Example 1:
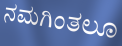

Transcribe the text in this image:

ನಮಗಿಂತಲೂ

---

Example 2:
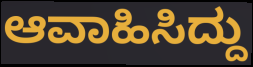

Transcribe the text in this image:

ಆವಾಹಿಸಿದ್ದು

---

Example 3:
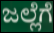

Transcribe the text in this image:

ಜಲ್ಲೆಗೆ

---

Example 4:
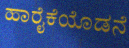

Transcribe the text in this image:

ಹಾರೈಕೆಯೊಡನೆ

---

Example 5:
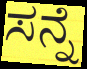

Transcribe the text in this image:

ಸನ್ನೆ